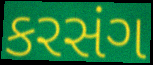
કરસંગ